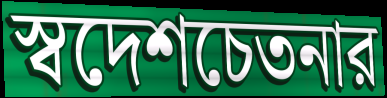
স্বদেশচেতনার